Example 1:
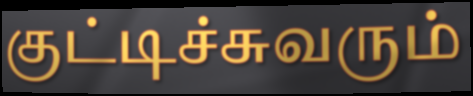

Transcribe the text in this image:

குட்டிச்சுவரும்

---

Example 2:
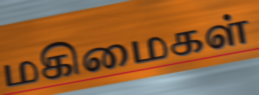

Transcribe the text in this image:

மகிமைகள்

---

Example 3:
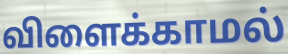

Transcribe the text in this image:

விளைக்காமல்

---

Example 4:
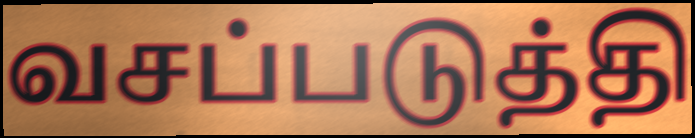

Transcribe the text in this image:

வசப்படுத்தி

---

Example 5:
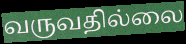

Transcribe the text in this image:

வருவதில்லை